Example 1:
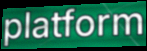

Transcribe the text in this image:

platform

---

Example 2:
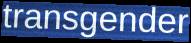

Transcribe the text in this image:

transgender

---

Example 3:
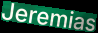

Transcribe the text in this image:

Jeremias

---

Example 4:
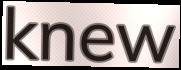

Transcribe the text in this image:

knew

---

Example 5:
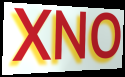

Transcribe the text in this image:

XNO